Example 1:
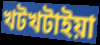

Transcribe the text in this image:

খটখটাইয়া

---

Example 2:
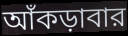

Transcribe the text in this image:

আঁকড়াবার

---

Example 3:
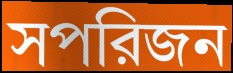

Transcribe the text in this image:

সপরিজন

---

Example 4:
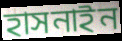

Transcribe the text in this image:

হাসনাইন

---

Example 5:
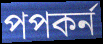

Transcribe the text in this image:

পপকর্ন